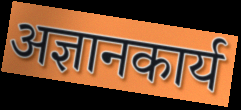
अज्ञानकार्य